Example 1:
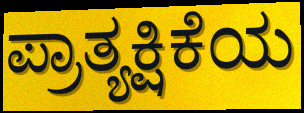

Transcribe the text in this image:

ಪ್ರಾತ್ಯಕ್ಷಿಕೆಯ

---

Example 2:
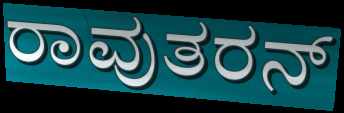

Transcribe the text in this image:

ರಾವುತರನ್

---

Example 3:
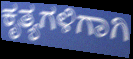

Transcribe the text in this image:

ಕೃತ್ಯಗಳಿಗಾಗಿ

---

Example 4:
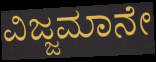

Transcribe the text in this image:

ವಿಜ್ಜಮಾನೇ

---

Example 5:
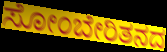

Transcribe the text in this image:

ಸೋಂಬೇರಿತನದ